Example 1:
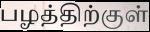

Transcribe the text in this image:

பழத்திற்குள்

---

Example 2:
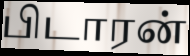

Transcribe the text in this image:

பிடாரன்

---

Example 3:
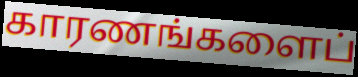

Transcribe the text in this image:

காரணங்களைப்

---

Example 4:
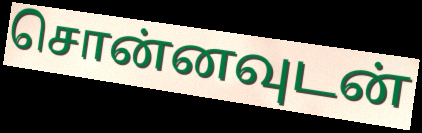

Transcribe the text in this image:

சொன்னவுடன்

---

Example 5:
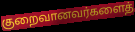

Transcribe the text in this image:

குறைவானவர்களைத்